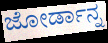
ಜೋರ್ಡಾನ್ನ